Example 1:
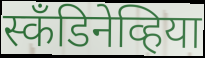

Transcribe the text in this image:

स्कँडिनेव्हिया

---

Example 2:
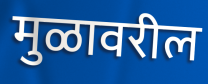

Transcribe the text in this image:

मुळावरील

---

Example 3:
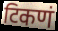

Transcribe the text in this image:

टिकणं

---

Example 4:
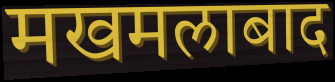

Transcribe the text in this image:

मखमलाबाद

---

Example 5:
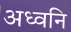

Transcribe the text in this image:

अध्वनि